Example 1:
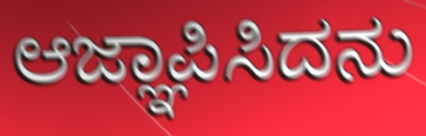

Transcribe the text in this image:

ಆಜ್ಞಾಪಿಸಿದನು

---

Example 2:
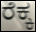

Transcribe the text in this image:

ರೆಕ್ಕ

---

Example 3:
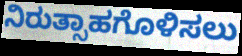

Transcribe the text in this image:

ನಿರುತ್ಸಾಹಗೊಳಿಸಲು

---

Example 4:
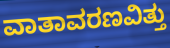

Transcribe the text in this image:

ವಾತಾವರಣವಿತ್ತು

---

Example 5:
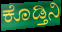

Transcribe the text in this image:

ಕೊಡ್ತಿನಿ